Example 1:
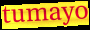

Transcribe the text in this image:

tumayo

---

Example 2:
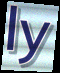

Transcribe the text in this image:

ly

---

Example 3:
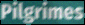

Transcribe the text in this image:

Pilgrimes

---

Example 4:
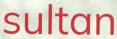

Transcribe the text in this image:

sultan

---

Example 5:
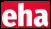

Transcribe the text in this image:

eha